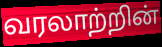
வரலாற்றின்